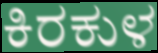
ಕಿರಕುಳ